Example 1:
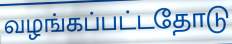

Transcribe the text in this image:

வழங்கப்பட்டதோடு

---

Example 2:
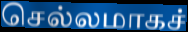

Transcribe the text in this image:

செல்லமாகச்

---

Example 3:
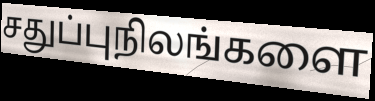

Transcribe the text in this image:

சதுப்புநிலங்களை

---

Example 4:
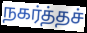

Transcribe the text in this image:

நகர்த்தச்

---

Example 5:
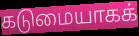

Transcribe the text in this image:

கடுமையாகக்